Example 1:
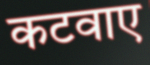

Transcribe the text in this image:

कटवाए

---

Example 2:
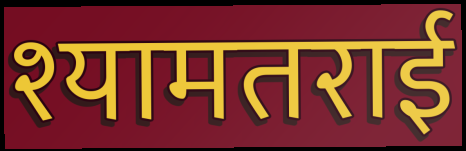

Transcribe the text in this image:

श्यामतराई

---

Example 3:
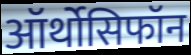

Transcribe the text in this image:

ऑर्थोसिफॉन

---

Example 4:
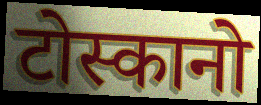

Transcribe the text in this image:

टोस्कानो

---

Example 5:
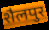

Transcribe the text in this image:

शैलपुर